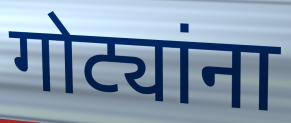
गोट्यांना